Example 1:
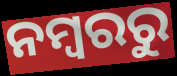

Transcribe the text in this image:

ନମ୍ବରରୁ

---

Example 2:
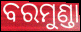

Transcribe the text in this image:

ବରମୁଣ୍ଡା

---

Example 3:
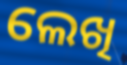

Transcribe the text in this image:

ଲେଖି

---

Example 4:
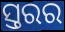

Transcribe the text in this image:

ସ୍ତରର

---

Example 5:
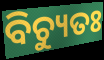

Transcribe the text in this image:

ବିଚ୍ୟୁତଃ